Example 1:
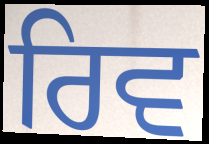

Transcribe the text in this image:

ਰਿਵ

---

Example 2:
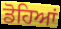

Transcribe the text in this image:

ਡੋਹਿਆਂ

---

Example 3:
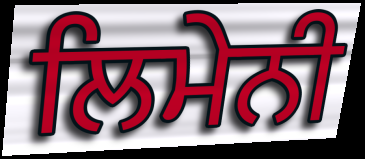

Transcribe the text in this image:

ਲਿਮੇਨੀ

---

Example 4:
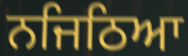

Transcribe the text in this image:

ਨਜਿਠਿਆ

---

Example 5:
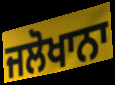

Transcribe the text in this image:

ਜਲੋਖਾਨਾ